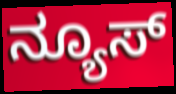
ನ್ಯೂಸ್